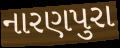
નારણપુરા